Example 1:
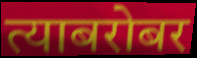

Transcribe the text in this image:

त्याबरोबर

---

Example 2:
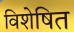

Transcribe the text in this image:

विशेषित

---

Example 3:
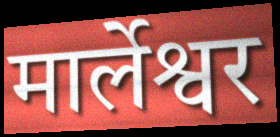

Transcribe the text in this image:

मार्लेश्वर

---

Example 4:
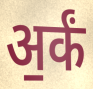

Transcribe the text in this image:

अ॒र्कं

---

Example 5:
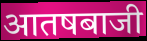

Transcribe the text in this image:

आतषबाजी